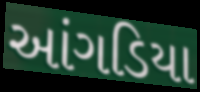
આંગડિયા